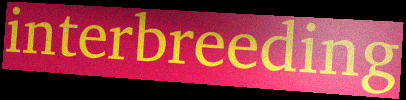
interbreeding